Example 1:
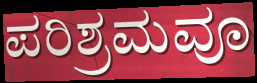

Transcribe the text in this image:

ಪರಿಶ್ರಮವೂ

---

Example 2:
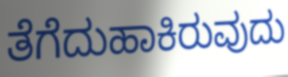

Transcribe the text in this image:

ತೆಗೆದುಹಾಕಿರುವುದು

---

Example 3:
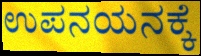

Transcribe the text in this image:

ಉಪನಯನಕ್ಕೆ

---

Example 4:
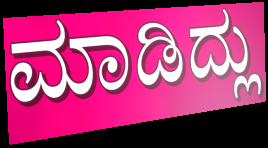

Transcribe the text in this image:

ಮಾಡಿದ್ಲು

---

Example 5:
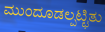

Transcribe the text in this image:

ಮುಂದೂಡಲ್ಪಟ್ಟಿತು